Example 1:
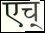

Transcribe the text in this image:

एच्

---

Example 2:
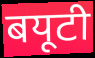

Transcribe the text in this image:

बयूटी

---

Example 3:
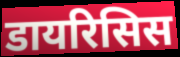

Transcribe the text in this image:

डायरिसिस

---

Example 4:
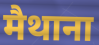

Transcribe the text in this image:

मैथाना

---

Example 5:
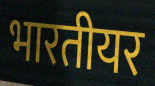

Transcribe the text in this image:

भारतीयर